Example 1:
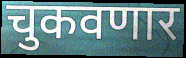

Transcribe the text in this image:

चुकवणार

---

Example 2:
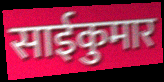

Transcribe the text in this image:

साईकुमार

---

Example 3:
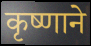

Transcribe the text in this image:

कृष्णाने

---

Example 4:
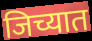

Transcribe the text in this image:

जिच्यात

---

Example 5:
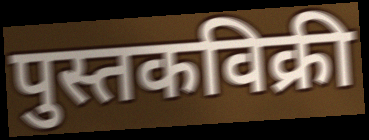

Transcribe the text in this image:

पुस्तकविक्री